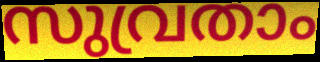
സുവ്രതാം